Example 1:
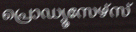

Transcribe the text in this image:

പ്രൊഡ്യൂസേഴ്സ്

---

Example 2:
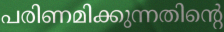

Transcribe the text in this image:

പരിണമിക്കുന്നതിന്റെ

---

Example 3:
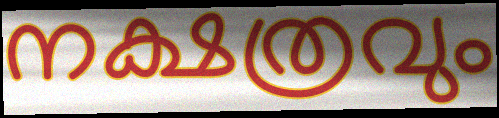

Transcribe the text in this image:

നക്ഷത്രവും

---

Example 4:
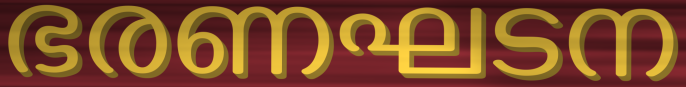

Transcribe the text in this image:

ഭരണഘടന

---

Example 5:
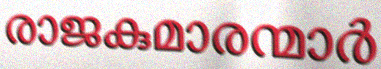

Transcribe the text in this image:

രാജകുമാരന്മാർ